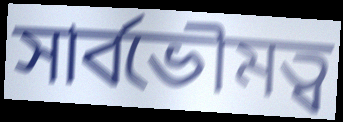
সার্বভৌমত্ব